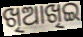
ଖିଆଖିଇ